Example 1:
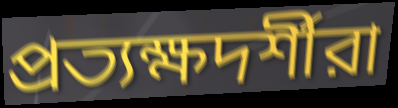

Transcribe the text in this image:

প্রত্যক্ষদর্শীরা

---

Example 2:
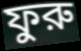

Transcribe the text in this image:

ফুরু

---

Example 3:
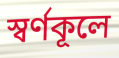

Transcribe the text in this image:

স্বর্ণকূলে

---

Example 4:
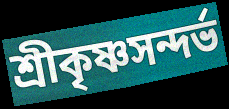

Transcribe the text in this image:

শ্রীকৃষ্ণসন্দর্ভ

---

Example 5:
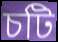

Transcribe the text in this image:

চটি